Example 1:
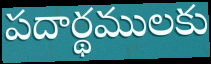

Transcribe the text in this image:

పదార్థములకు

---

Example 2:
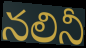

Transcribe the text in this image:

నలినీ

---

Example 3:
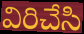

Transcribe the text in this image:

విరిచేసి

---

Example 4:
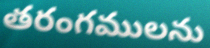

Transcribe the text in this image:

తరంగములను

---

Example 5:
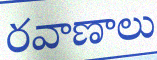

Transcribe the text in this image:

రవాణాలు